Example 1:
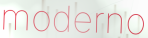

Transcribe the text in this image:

moderno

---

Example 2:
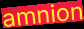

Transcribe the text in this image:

amnion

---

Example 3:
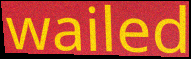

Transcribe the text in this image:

wailed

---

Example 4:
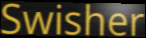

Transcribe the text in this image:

Swisher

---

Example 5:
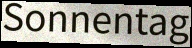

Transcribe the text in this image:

Sonnentag